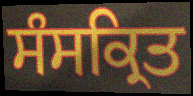
ਸੰਸਕ੍ਰਿਤ